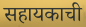
सहायकाची